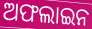
ଅଫଲାଇନ